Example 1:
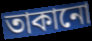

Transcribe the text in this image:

তাকানো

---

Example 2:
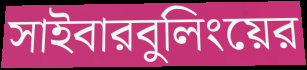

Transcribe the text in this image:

সাইবারবুলিংয়ের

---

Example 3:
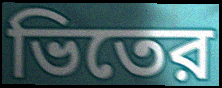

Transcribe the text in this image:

ভিতের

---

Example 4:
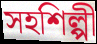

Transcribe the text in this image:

সহশিল্পী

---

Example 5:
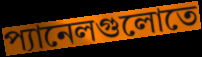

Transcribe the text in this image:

প্যানেলগুলোতে